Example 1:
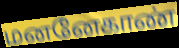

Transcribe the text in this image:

மனனேகாண்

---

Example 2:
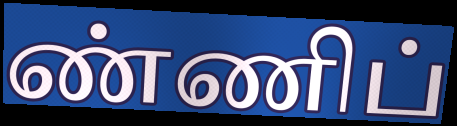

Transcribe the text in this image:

ண்ணிப்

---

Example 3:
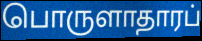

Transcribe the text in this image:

பொருளாதாரப்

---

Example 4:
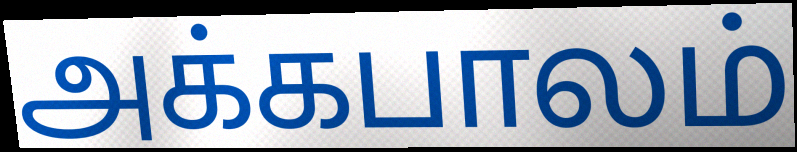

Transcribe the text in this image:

அக்கபாலம்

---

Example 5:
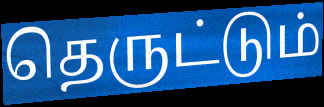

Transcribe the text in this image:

தெருட்டும்